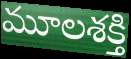
మూలశక్తి